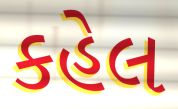
કહેલ